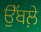
ਉੱਬਲ਼ੇ